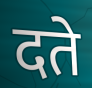
दते